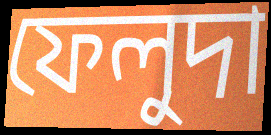
ফেলুদা